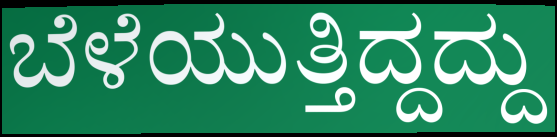
ಬೆಳೆಯುತ್ತಿದ್ದದ್ದು